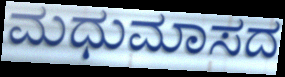
ಮಧುಮಾಸದ